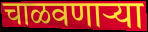
चाळवणाऱ्या